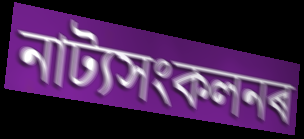
নাট্যসংকলনৰ